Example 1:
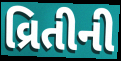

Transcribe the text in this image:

વ્રિતીની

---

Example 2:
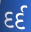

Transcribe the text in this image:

દર્દ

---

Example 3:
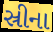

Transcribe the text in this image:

સ્રીના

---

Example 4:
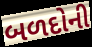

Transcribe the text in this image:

બળદોની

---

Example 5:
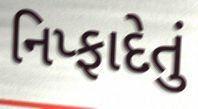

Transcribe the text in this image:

નિપ્ફાદેતું